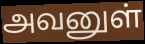
அவனுள்